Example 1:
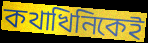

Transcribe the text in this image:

কথাখিনিকেই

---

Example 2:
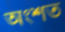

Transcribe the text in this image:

অংশত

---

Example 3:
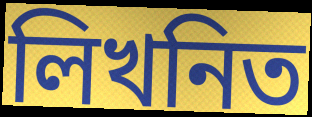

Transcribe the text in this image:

লিখনিত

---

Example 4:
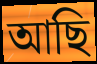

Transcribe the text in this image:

আছি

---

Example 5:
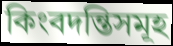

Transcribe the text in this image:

কিংবদন্তিসমূহ